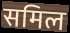
समिल